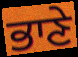
ਭਾਣੇ